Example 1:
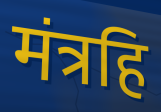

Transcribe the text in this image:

मंत्रहि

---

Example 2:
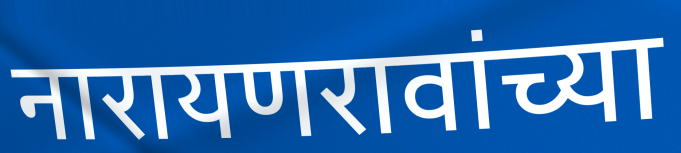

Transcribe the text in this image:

नारायणरावांच्या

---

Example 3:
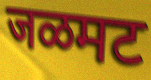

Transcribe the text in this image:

जळमट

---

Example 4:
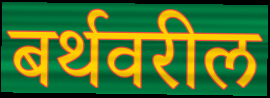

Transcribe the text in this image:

बर्थवरील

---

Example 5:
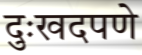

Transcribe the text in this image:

दुःखदपणे